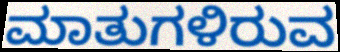
ಮಾತುಗಳಿರುವ